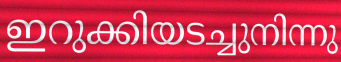
ഇറുക്കിയടച്ചുനിന്നു